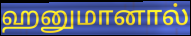
ஹனுமானால்